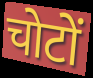
चोटों